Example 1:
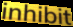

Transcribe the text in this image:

inhibit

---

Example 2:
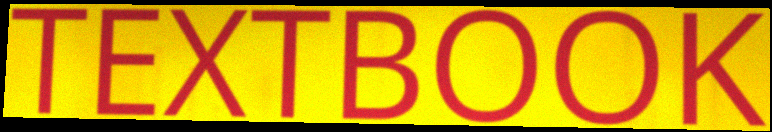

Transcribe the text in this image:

TEXTBOOK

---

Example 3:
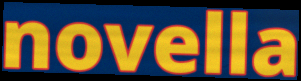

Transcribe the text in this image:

novella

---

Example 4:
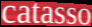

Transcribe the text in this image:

catasso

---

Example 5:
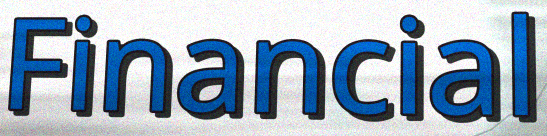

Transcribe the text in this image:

Financial